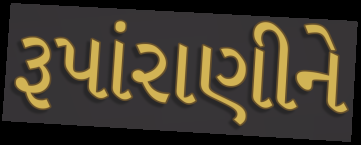
રૂપાંરાણીને